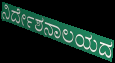
ನಿರ್ದೇಶನಾಲಯದ